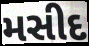
મસીદ